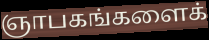
ஞாபகங்களைக்